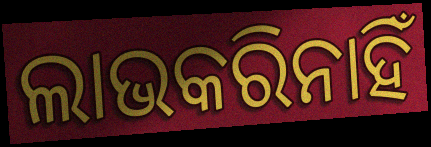
ଲାଭକରିନାହିଁ